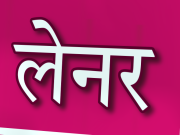
लेनर